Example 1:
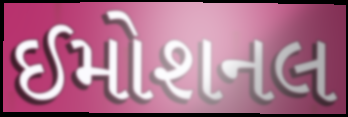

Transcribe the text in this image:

ઈમોશનલ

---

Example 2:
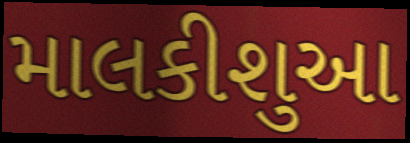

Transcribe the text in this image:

માલકીશુઆ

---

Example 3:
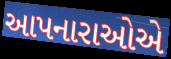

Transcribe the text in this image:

આપનારાઓએ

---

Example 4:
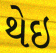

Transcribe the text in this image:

થેઇ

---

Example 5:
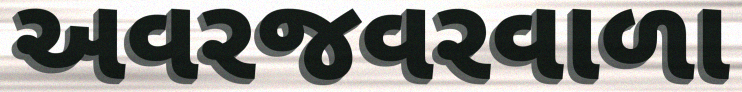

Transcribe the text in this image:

અવરજવરવાળા